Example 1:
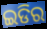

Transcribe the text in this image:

ଇଡିର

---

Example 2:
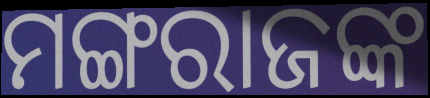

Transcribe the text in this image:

ମଙ୍ଗରାଜଙ୍କ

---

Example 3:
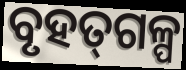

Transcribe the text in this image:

ବୃହତ୍‌ଗଳ୍ପ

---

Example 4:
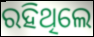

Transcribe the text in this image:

ରହିଥିଲେ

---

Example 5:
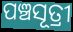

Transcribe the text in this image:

ପଞ୍ଚସୂତ୍ରୀ